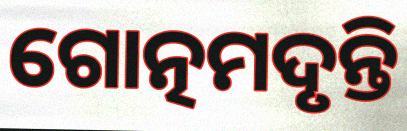
ଗୋତ୍ନମଦୃନ୍ତି